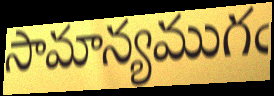
సామాన్యముగఁ